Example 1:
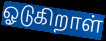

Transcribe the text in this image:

ஓடுகிறாள்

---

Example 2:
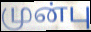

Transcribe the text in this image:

முன்பு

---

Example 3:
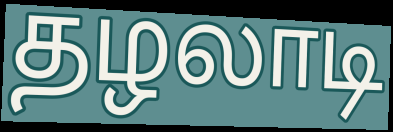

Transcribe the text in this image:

தழலாடி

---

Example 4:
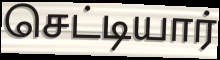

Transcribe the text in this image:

செட்டியார்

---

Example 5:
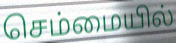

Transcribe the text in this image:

செம்மையில்